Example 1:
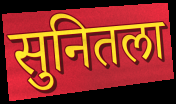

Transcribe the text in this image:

सुनितला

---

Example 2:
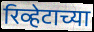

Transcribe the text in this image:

रिव्हेटाच्या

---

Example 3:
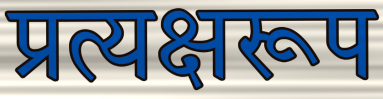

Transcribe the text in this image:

प्रत्यक्षरूप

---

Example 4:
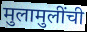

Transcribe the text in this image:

मुलामुलींची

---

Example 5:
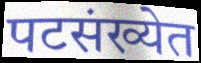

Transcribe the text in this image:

पटसंख्येत